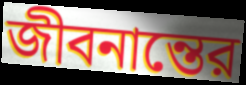
জীবনান্তের